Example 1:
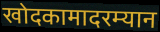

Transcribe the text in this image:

खोदकामादरम्यान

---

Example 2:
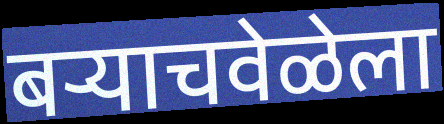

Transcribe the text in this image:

बर्‍याचवेळेला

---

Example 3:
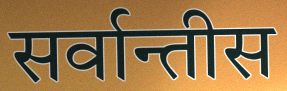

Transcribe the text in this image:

सर्वान्तीस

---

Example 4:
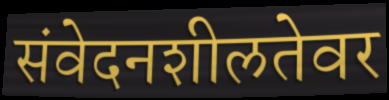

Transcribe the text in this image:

संवेदनशीलतेवर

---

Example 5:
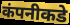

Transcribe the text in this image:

कंपनीकडे